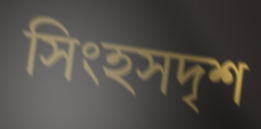
সিংহসদৃশ